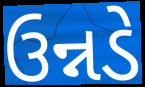
ઉન્નડે